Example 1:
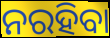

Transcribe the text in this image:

ନରହିବା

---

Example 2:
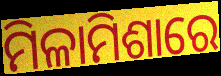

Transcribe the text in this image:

ମିଳାମିଶାରେ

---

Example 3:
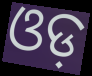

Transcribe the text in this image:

ଓଡ଼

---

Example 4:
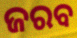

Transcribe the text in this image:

ଜରବ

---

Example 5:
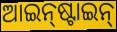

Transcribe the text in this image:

ଆଇନ୍‌ଷ୍ଟାଇନ୍